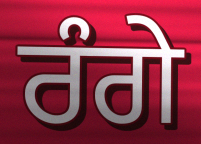
ਰੰਗੇ